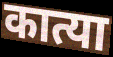
कात्या